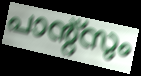
പാന്റ്സും